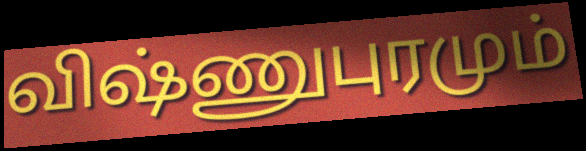
விஷ்ணுபுரமும்